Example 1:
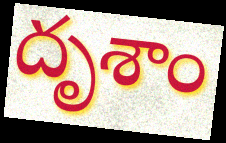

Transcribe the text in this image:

దృశాం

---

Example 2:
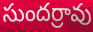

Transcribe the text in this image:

సుందర్రావు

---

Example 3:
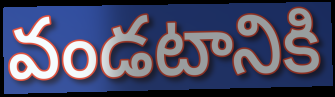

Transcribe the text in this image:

వండటానికి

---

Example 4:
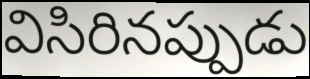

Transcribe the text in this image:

విసిరినప్పుడు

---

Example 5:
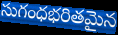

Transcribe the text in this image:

సుగంధభరితమైన